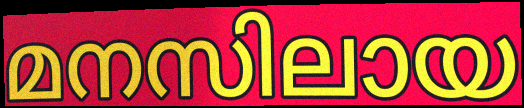
മനസിലായ